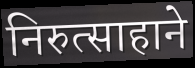
निरुत्साहाने